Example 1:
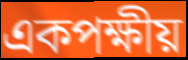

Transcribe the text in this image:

একপক্ষীয়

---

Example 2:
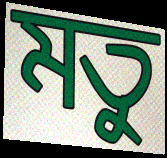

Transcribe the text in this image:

মতু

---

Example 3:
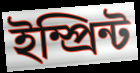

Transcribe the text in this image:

ইম্প্ৰিন্ট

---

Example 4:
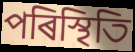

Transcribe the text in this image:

পৰিস্থিতি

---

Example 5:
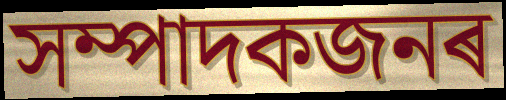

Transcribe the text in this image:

সম্পাদকজনৰ